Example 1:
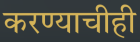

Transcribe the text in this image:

करण्याचीही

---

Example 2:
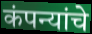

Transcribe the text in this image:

कंपन्यांचे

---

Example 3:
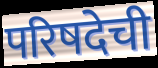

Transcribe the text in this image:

परिषदेची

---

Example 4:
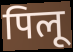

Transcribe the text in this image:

पिलू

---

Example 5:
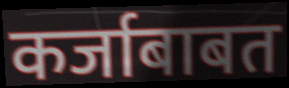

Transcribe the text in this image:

कर्जाबाबत